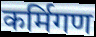
कर्मिगण